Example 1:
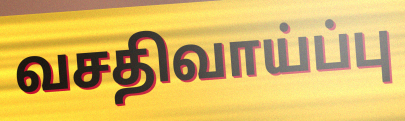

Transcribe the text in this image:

வசதிவாய்ப்பு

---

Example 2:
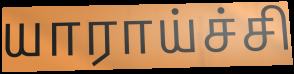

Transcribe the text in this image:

யாராய்ச்சி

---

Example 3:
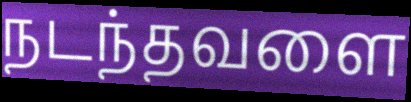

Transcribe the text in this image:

நடந்தவளை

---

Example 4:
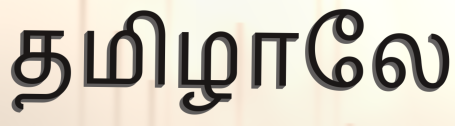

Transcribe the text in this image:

தமிழாலே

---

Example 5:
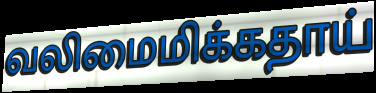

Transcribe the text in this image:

வலிமைமிக்கதாய்